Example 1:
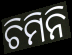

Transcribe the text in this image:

ଚିମିନି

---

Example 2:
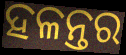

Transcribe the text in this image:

ହଳନ୍ତର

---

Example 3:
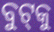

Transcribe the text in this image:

ବୁଟ୍‌କୁ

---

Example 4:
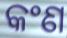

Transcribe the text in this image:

କଂଣ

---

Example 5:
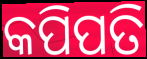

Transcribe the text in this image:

କପିପତି